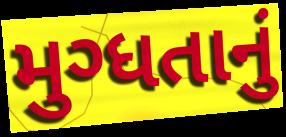
મુગ્ધતાનું